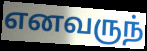
எனவருந்